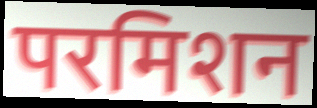
परमिशन